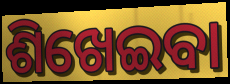
ଶିଖେଇବା